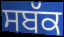
ਸਬੱਕ